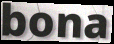
bona